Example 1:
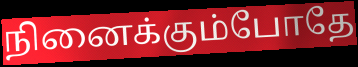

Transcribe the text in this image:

நினைக்கும்போதே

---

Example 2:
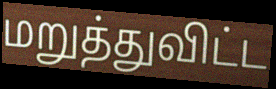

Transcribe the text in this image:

மறுத்துவிட்ட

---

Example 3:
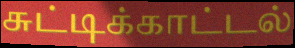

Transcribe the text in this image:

சுட்டிக்காட்டல்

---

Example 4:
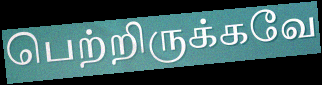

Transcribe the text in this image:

பெற்றிருக்கவே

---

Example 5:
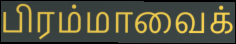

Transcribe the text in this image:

பிரம்மாவைக்